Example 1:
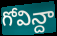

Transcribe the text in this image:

గోవిన్దా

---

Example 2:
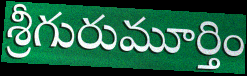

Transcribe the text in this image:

శ్రీగురుమూర్తిం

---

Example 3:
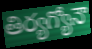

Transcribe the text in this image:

తిర్యగ్యోనౌ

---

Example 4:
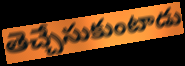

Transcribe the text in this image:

తెచ్చేసుకుంటాడు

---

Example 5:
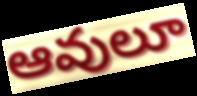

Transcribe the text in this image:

ఆవులూ